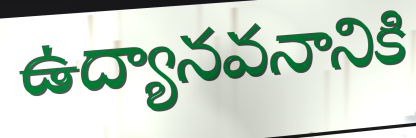
ఉద్యానవనానికి